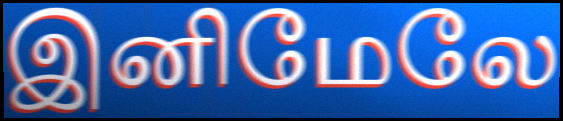
இனிமேலே